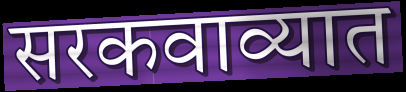
सरकवाव्यात